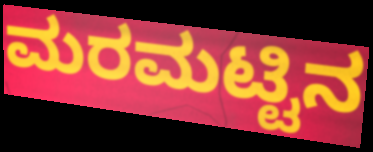
ಮರಮಟ್ಟಿನ